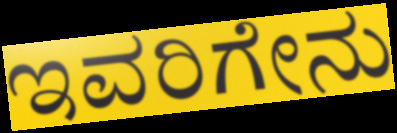
ಇವರಿಗೇನು